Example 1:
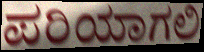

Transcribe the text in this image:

ಪರಿಯಾಗಲಿ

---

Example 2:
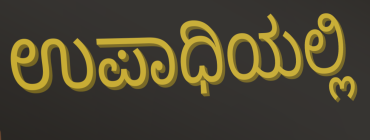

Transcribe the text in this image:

ಉಪಾಧಿಯಲ್ಲಿ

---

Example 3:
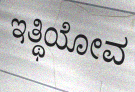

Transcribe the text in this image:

ಇತ್ಥಿಯೋವ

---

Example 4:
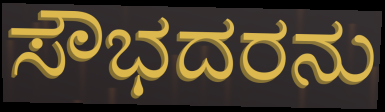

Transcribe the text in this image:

ಸೌಭದರನು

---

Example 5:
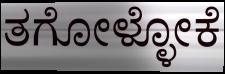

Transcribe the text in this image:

ತಗೋಳ್ಳೋಕೆ